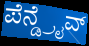
ಪೆನ್ಡ್ರೈವ್